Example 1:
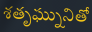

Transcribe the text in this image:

శతృఘ్నునితో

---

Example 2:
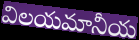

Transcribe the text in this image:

విలయమానీయ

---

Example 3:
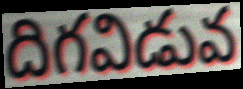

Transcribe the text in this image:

దిగవిడువ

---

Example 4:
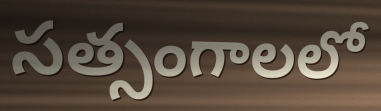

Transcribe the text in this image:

సత్సంగాలలో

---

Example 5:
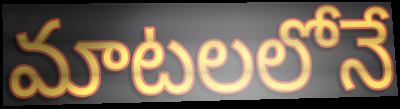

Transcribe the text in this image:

మాటలలోనే